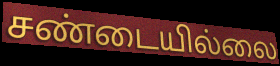
சண்டையில்லை